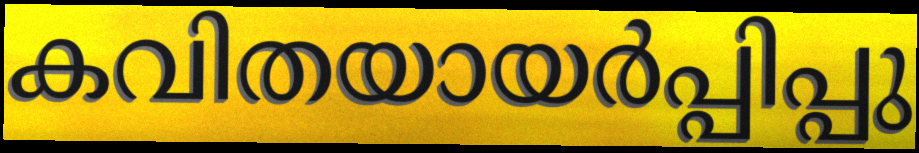
കവിതയായർപ്പിപ്പു